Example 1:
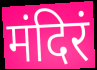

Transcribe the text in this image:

मंदिरं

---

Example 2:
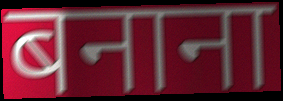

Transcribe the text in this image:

बनाना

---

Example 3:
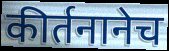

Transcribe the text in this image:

कीर्तनानेच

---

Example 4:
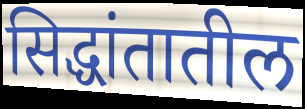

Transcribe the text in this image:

सिद्धांतातील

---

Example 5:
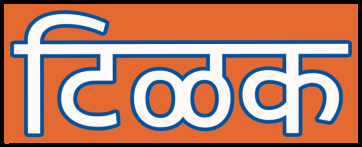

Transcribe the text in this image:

टिळक